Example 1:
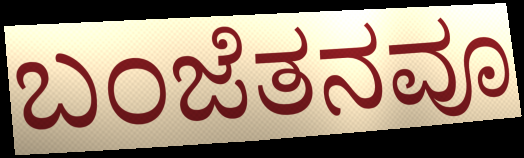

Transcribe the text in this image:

ಬಂಜೆತನವೂ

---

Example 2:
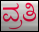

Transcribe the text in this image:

ವ್ರತಿ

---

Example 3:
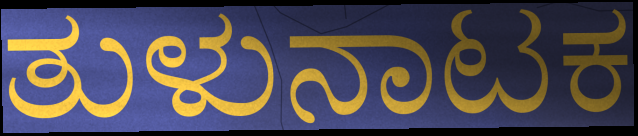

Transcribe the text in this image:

ತುಳುನಾಟಕ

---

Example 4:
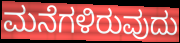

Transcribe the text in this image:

ಮನೆಗಳಿರುವುದು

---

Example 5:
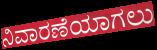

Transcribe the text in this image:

ನಿವಾರಣೆಯಾಗಲು